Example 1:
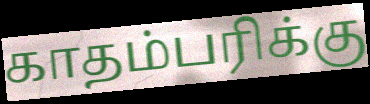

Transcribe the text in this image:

காதம்பரிக்கு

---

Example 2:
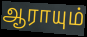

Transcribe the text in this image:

ஆராயும்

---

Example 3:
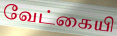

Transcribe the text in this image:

வேட்கையி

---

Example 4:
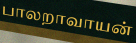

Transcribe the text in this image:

பாலறாவாயன்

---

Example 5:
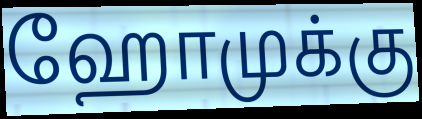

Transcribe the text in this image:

ஹோமுக்கு